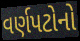
વર્ણપટોનો